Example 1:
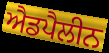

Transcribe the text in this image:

ਐਡਪੈਲੀਨ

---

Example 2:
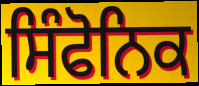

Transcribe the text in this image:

ਸਿੰਫੋਨਿਕ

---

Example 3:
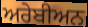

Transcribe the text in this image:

ਅਰੇਬੀਅਨ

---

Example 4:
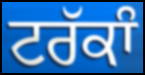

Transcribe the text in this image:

ਟਰੱਕਾੰ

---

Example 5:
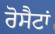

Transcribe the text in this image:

ਰੋਸੈਟਾਂ